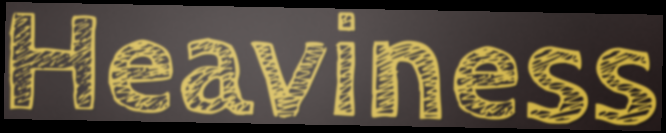
Heaviness